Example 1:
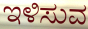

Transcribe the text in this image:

ಇಳಿಸುವ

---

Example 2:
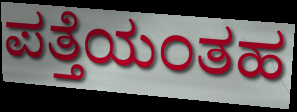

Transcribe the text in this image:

ಪತ್ತೆಯಂತಹ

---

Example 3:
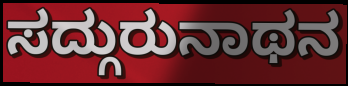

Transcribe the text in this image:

ಸದ್ಗುರುನಾಥನ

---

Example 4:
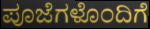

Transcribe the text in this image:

ಪೂಜೆಗಳೊಂದಿಗೆ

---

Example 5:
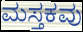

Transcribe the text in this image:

ಮಸ್ತಕವು